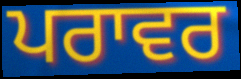
ਪਰਾਵਰ